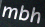
mbh